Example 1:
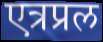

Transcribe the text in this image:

एत्रप्रल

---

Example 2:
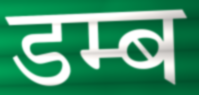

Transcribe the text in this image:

डम्ब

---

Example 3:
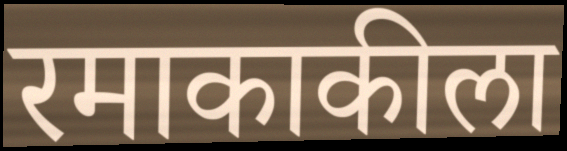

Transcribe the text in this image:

रमाकाकीला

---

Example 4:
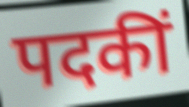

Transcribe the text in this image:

पदकीं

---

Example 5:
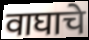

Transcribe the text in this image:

वाघाचे